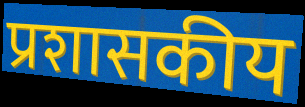
प्रशासकीय